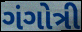
ગંગોત્રી